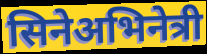
सिनेअभिनेत्री